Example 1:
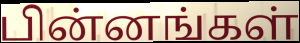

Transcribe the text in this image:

பின்னங்கள்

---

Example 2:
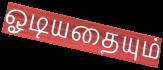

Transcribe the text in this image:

ஓடியதையும்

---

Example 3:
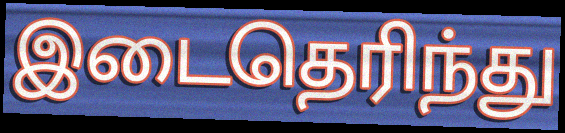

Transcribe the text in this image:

இடைதெரிந்து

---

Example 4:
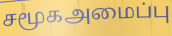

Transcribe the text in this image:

சமூகஅமைப்பு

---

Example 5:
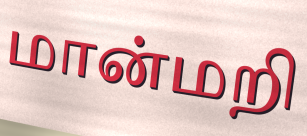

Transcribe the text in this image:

மான்மறி